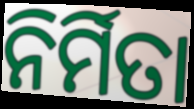
ନିର୍ମିତା